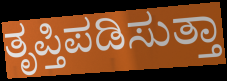
ತೃಪ್ತಿಪಡಿಸುತ್ತಾ